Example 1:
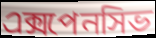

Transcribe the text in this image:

এক্সপেনসিভ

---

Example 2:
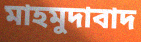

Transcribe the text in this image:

মাহমুদাবাদ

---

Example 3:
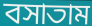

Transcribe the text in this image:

বসাতাম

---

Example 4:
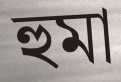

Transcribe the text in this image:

হুমা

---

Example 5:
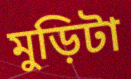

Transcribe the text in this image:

মুড়িটা